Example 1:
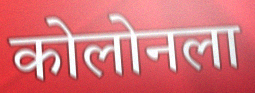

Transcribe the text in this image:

कोलोनला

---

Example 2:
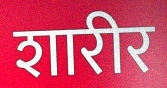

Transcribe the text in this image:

शारीर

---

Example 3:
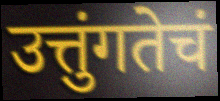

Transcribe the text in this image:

उत्तुंगतेचं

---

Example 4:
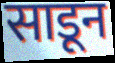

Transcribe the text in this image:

साडून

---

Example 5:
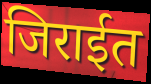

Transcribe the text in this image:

जिराईत